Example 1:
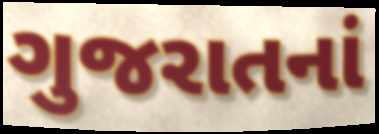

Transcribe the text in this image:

ગુજરાતનાં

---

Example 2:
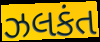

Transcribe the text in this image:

ઝલકંત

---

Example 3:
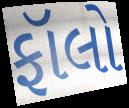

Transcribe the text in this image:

ફૉલો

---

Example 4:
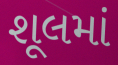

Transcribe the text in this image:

શૂલમાં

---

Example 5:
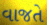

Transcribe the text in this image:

વાજતે